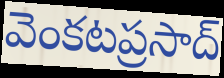
వెంకటప్రసాద్